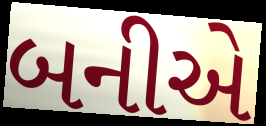
બનીએ